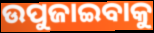
ଉପୁଜାଇବାକୁ